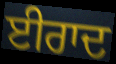
ਈਰਾਦ